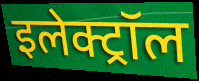
इलेक्ट्रॉल